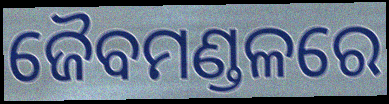
ଜୈବମଣ୍ଡଳରେ